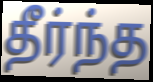
தீர்ந்த